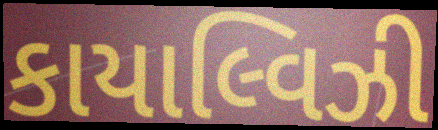
કાયાલ્વિઝી